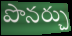
పొనర్చు